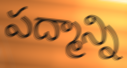
పద్మాన్ని